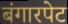
बंगारपेट